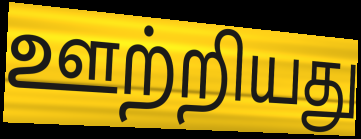
ஊற்றியது